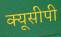
क्यूसीपी